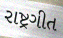
રાષ્ટ્રગીત